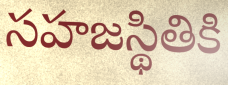
సహజస్థితికి